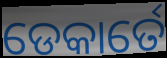
ଡେକାର୍ତେ